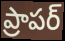
ప్రాపర్